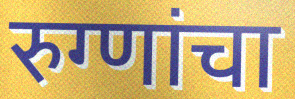
रुग्णांचा